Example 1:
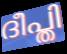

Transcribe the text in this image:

ദീപ്തി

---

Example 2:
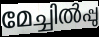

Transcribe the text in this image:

മേച്ചിൽപ്പു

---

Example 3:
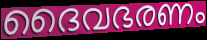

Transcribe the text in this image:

ദൈവഭരണം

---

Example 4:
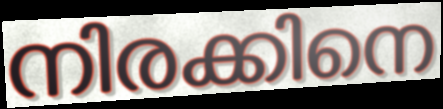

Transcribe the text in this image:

നിരക്കിനെ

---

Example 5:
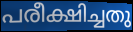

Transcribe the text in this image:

പരീക്ഷിച്ചതു